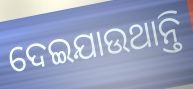
ଦେଇଯାଉଥାନ୍ତି